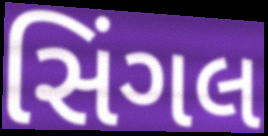
સિંગલ